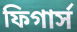
ফিগার্স